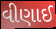
વીણાઈ